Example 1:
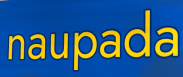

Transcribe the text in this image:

naupada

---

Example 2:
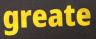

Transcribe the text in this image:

greate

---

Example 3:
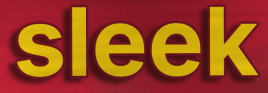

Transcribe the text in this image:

sleek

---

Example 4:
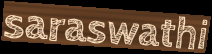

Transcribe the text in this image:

saraswathi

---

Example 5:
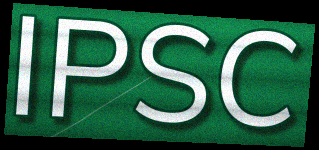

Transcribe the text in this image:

IPSC